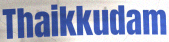
Thaikkudam